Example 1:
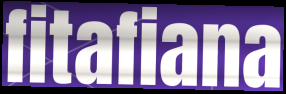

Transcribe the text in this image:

fitafiana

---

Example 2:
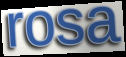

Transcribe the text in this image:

rosa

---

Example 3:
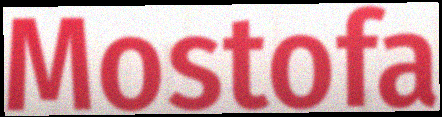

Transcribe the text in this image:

Mostofa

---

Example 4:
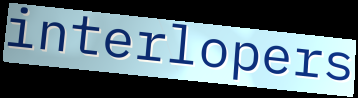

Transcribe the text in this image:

interlopers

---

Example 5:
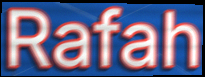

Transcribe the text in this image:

Rafah